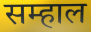
सम्हाल